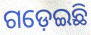
ଗଡ଼େଇଛି